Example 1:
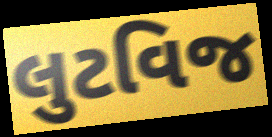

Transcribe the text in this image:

લુટવિજ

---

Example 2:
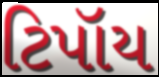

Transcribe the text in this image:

ટિપૉય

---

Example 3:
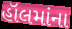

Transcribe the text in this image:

હૉલમાંના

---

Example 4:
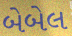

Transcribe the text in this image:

બેબેલ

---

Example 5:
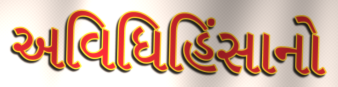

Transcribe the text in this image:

અવિધિહિંસાનો